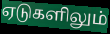
ஏடுகளிலும்